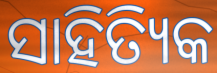
ସାହିତ୍ୟିକ